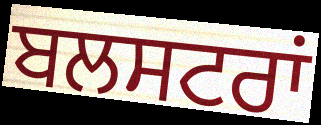
ਬਲਸਟਰਾਂ